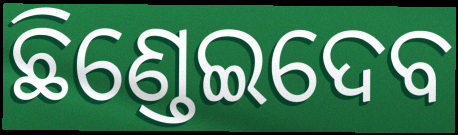
ଛିଣ୍ଡେଇଦେବ